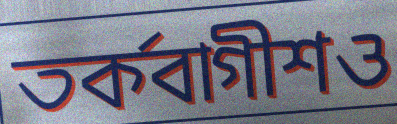
তর্কবাগীশও